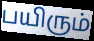
பயிரும்